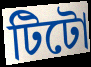
টিটো